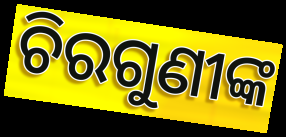
ଚିରଗୁଣୀଙ୍କ